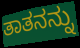
ತಾತನನ್ನು